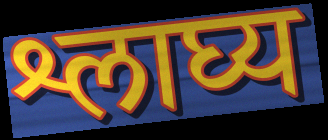
श्लाघ्य